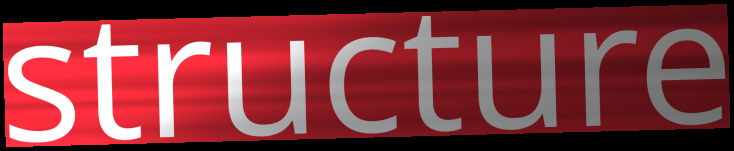
structure